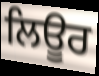
ਲਿਊਰ